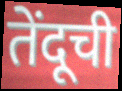
तेंदूची